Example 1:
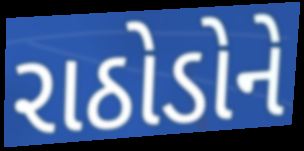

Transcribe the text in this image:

રાઠોડોને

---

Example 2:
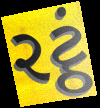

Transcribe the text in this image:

રટ્ઠં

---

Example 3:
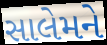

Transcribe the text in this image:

સાલેમને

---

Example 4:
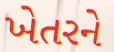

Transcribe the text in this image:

ખેતરને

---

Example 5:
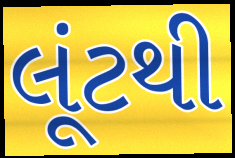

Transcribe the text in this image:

લૂંટથી